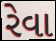
રેવા